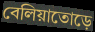
বেলিয়াতোড়ে